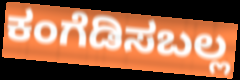
ಕಂಗೆಡಿಸಬಲ್ಲ